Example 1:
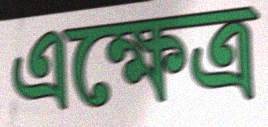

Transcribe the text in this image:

এক্ষেত্র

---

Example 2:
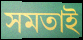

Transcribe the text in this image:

সমতাই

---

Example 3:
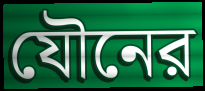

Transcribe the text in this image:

যৌনের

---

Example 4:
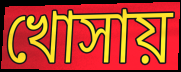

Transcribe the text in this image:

খোসায়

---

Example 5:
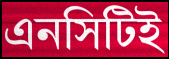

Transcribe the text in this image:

এনসিটিই